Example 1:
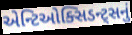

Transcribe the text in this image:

એન્ટિઓક્સિડન્ટ્સનું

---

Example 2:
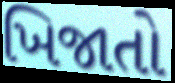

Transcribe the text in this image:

ખિજાતો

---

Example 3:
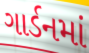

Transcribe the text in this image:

ગાર્ડનમાં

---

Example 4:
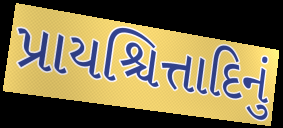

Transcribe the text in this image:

પ્રાયશ્ચિત્તાદિનું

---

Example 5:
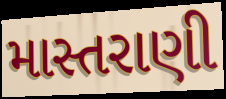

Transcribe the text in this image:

માસ્તરાણી